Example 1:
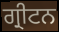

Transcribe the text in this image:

ਗ੍ਰੀਟਨ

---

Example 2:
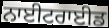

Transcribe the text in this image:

ਨਾਈਟਰਾਈਡ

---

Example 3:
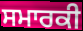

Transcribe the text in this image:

ਸਮਾਰਕੀ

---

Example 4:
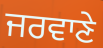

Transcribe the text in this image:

ਜਰਵਾਣੇ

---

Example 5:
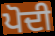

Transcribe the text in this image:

ਪੋਦੀ